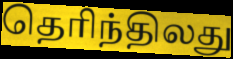
தெரிந்திலது